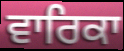
ਵਾਰਿਕਾ